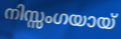
നിസ്സംഗയായ്